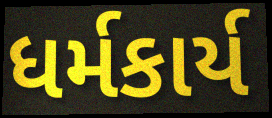
ધર્મકાર્ય